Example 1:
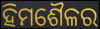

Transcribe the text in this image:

ହିମଶୈଳର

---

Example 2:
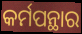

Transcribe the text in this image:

କର୍ମପନ୍ଥାର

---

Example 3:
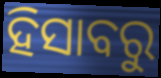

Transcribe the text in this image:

ହିସାବରୁ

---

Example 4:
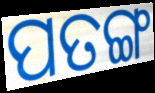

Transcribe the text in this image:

ପତଙ୍ଗ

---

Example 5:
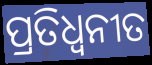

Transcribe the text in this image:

ପ୍ରତିଧ୍ବନୀତ